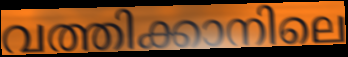
വത്തിക്കാനിലെ